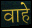
वाहे